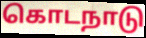
கொடநாடு